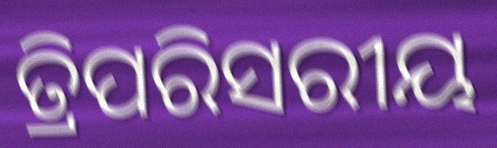
ତ୍ରିପରିସରୀୟ